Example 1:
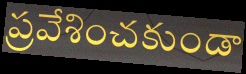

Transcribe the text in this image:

ప్రవేశించకుండా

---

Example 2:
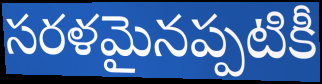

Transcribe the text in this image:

సరళమైనప్పటికీ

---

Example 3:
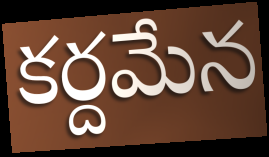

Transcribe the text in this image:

కర్దమేన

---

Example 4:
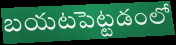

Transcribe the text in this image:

బయటపెట్టడంలో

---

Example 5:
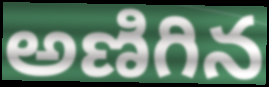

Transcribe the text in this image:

అణిగిన